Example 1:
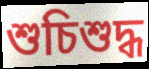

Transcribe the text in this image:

শুচিশুদ্ধ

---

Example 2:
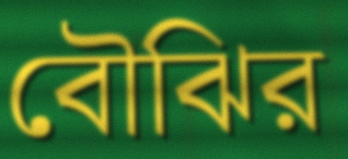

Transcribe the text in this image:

বৌঝির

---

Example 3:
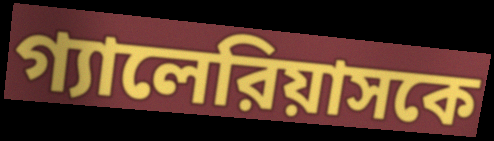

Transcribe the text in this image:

গ্যালেরিয়াসকে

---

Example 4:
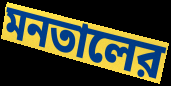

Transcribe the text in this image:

মনতালের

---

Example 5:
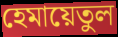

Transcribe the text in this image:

হেমায়েতুল